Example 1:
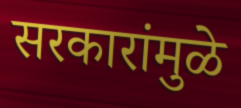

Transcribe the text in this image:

सरकारांमुळे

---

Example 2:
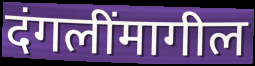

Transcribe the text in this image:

दंगलींमागील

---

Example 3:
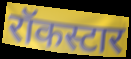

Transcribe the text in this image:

रॉकस्टार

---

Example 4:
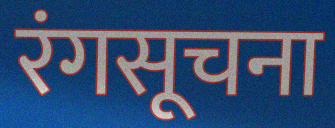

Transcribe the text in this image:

रंगसूचना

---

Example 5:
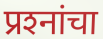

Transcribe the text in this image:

प्रश्‍नांचा